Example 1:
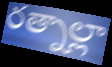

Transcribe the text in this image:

రత్నాల్లా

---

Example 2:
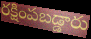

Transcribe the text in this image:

రక్షింపబడ్డారు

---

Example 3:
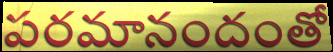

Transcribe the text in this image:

పరమానందంతో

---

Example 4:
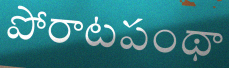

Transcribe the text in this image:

పోరాటపంథా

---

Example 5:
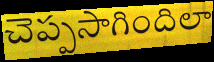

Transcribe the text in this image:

చెప్పసాగిందిలా